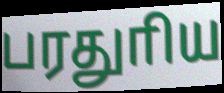
பரதுரிய